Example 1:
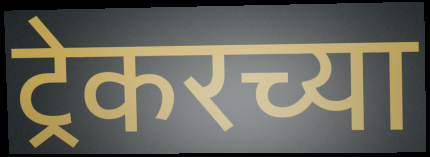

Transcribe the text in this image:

ट्रेकरच्या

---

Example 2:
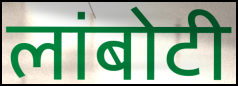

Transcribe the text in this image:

लांबोटी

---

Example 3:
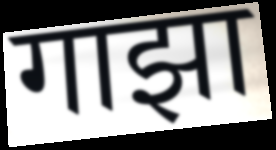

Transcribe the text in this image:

गाझा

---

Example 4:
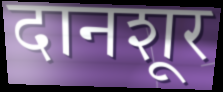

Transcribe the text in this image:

दानशूर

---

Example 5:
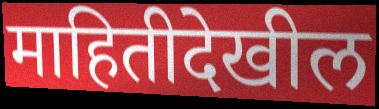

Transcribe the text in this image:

माहितीदेखील